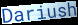
Dariush